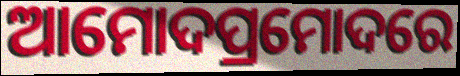
ଆମୋଦପ୍ରମୋଦରେ